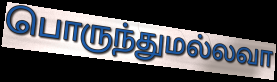
பொருந்துமல்லவா